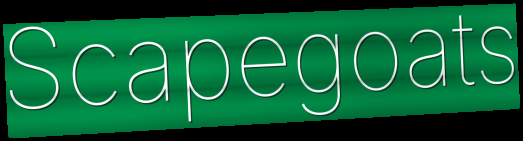
Scapegoats